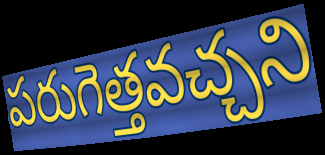
పరుగెత్తవచ్చని